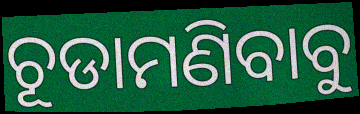
ଚୂଡାମଣିବାବୁ